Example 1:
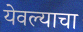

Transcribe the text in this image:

येवल्याचा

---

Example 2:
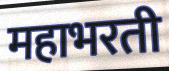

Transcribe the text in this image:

महाभरती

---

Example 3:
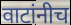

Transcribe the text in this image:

वाटांनीच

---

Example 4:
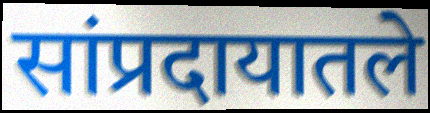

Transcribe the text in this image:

सांप्रदायातले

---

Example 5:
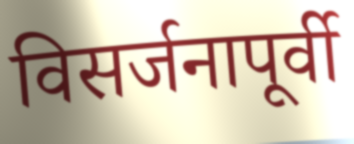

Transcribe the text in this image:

विसर्जनापूर्वी